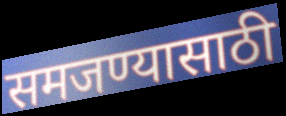
समजण्यासाठी